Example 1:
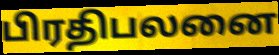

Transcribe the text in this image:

பிரதிபலனை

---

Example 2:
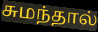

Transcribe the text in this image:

சுமந்தால்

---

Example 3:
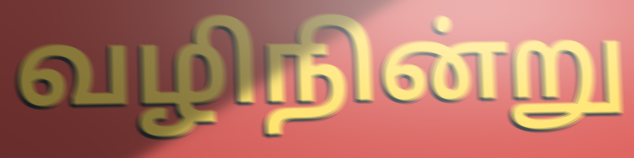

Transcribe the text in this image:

வழிநின்று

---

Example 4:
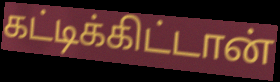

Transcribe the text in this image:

கட்டிக்கிட்டான்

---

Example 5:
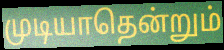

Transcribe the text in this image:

முடியாதென்றும்